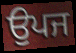
ਉਪਜ